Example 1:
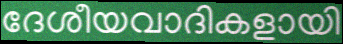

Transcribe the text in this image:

ദേശീയവാദികളായി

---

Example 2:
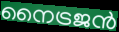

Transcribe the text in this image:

നൈട്രജൻ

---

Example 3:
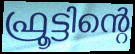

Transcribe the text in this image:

ഫ്രൂട്ടിന്റെ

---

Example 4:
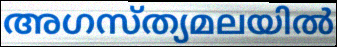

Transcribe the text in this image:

അഗസ്ത്യമലയിൽ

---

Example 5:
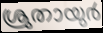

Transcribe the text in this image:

ശ്രുതായുർ